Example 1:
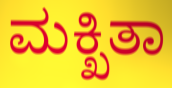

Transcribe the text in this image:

ಮಕ್ಖಿತಾ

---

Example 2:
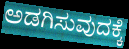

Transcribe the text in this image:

ಅಡಗಿಸುವುದಕ್ಕೆ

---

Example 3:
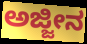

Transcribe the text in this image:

ಅಜ್ಜೀನ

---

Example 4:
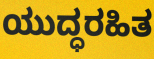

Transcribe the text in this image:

ಯುದ್ಧರಹಿತ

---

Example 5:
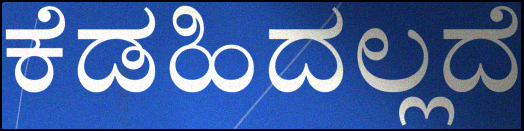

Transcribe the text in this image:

ಕೆಡಹಿದಲ್ಲದೆ